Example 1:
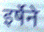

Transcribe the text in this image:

इर्षेने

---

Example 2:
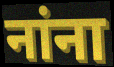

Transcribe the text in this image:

नांना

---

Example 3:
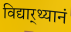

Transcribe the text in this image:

विद्यार्थ्यानं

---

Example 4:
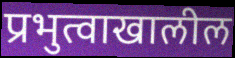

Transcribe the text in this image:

प्रभुत्वाखालील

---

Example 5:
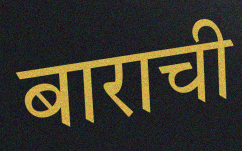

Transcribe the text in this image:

बाराची